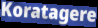
Koratagere